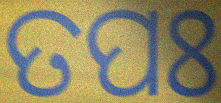
ତପଃ